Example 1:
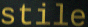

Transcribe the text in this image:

stile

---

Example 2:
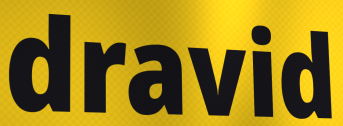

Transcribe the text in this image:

dravid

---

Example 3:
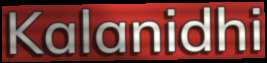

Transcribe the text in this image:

Kalanidhi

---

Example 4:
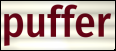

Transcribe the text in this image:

puffer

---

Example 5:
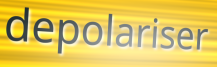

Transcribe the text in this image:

depolariser